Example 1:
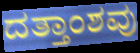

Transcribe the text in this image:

ದತ್ತಾಂಶವು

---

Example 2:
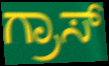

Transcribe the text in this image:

ಗ್ರಾಸ್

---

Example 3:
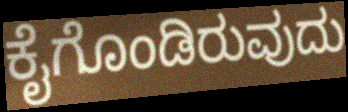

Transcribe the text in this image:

ಕೈಗೊಂಡಿರುವುದು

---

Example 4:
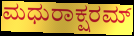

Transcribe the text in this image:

ಮಧುರಾಕ್ಷರಮ್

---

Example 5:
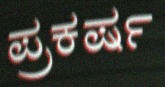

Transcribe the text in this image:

ಪ್ರಕರ್ಷ